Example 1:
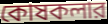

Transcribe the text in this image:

কোষকলার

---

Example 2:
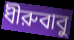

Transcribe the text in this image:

ধীরুবাবু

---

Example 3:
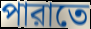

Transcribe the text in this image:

পারাতে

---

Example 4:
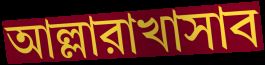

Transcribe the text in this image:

আল্লারাখাসাব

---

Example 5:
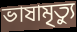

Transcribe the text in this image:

ভাষামৃত্যু